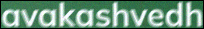
avakashvedh